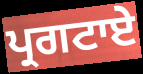
ਪ੍ਰਗਟਾਏ